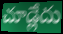
చూడ్లేదు